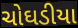
ચોઘડીયા